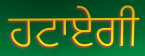
ਹਟਾਏਗੀ